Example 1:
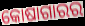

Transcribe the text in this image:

କୋଷାଗାରର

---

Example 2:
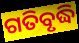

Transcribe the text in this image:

ଗତିବୃଦ୍ଧି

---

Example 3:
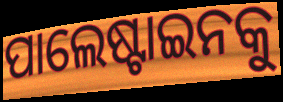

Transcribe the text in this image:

ପାଲେଷ୍ଟାଇନକୁ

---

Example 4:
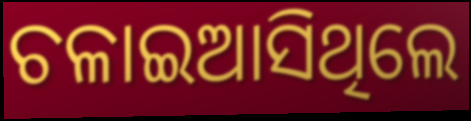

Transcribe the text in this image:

ଚଳାଇଆସିଥିଲେ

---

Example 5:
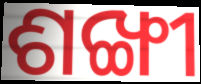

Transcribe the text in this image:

ଶଙ୍ଖୀ